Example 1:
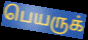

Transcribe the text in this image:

பெயருக்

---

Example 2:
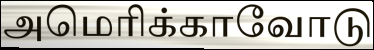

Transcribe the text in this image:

அமெரிக்காவோடு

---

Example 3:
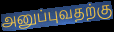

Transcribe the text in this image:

அனுப்புவதற்கு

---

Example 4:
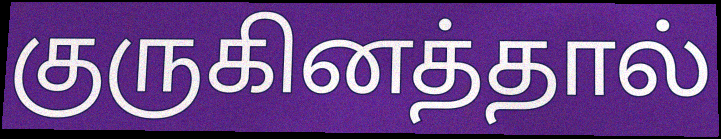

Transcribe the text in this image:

குருகினத்தால்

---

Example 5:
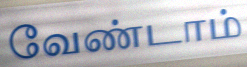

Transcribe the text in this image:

வேண்டாம்